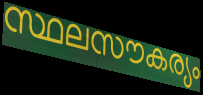
സ്ഥലസൗകര്യം